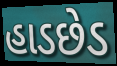
હાડછેડ